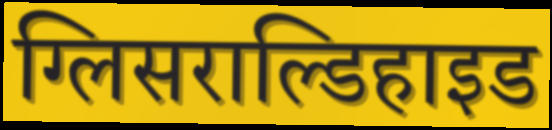
ग्लिसराल्डिहाइड